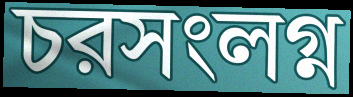
চরসংলগ্ন